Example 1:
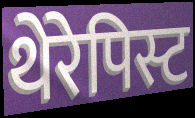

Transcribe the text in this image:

थेरेपिस्‍ट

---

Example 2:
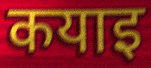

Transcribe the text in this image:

कयाइ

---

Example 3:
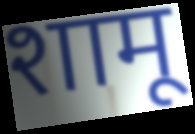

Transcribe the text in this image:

शामू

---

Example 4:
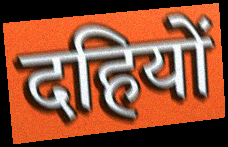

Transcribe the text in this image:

दहियों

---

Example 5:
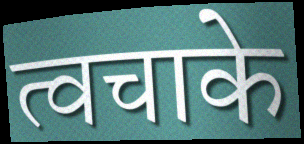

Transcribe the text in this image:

त्वचाके